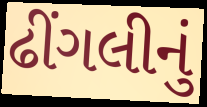
ઢીંગલીનું